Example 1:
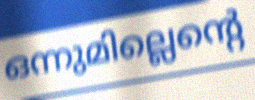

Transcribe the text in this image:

ഒന്നുമില്ലെന്റെ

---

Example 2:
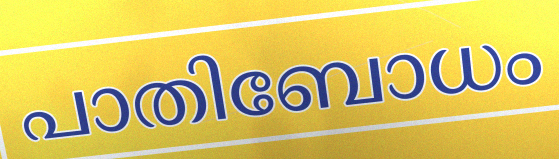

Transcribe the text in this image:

പാതിബോധം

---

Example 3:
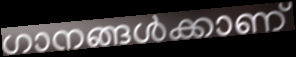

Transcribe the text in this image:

ഗാനങ്ങൾക്കാണ്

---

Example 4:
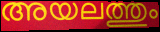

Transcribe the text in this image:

അയലത്തും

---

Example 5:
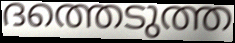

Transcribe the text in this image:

ദത്തെടുത്ത